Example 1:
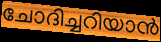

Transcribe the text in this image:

ചോദിച്ചറിയാൻ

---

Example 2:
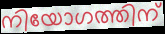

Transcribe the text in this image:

നിയോഗത്തിന്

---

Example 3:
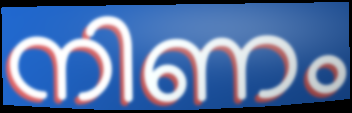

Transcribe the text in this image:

നിണം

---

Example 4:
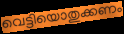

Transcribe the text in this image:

വെട്ടിയൊതുക്കണം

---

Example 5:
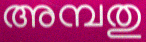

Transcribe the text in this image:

അമ്പതു